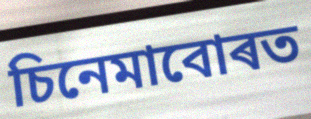
চিনেমাবোৰত